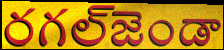
రగల్‌జెండా